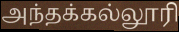
அந்தக்கல்லூரி